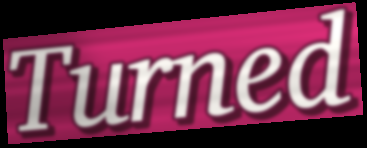
Turned